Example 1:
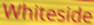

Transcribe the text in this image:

Whiteside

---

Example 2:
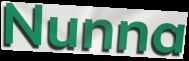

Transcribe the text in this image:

Nunna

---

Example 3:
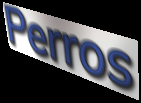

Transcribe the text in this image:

Perros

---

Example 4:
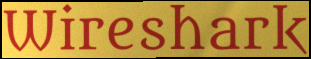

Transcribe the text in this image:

Wireshark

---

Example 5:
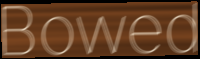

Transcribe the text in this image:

Bowed